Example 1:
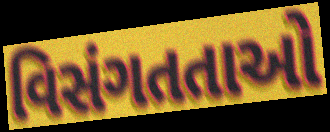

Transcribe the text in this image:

વિસંગતતાઓ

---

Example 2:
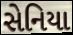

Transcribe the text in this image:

સેનિયા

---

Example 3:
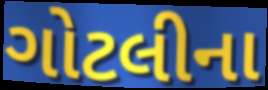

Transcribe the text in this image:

ગોટલીના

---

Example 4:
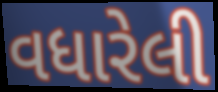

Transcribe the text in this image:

વધારેલી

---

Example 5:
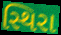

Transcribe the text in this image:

સ્થિરા